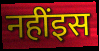
नहींइस